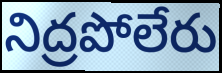
నిద్రపోలేరు